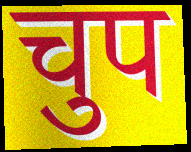
चुप